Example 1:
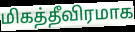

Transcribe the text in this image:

மிகத்தீவிரமாக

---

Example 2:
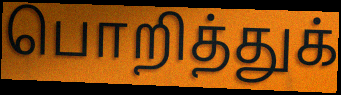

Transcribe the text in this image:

பொறித்துக்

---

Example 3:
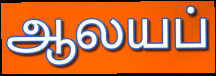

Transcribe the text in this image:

ஆலயப்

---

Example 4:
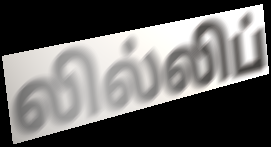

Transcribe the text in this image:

லில்லிப்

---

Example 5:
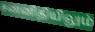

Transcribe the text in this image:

சன்னிதியிலும்